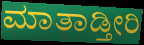
ಮಾತಾಡ್ತೀರಿ